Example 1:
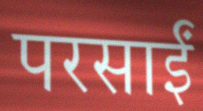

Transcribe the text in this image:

परसाईं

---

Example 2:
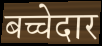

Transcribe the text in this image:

बच्चेदार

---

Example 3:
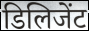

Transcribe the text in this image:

डिलिजेंट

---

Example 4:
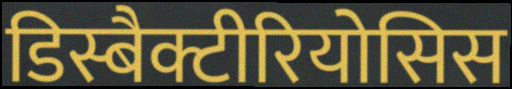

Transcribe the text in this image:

डिस्बैक्टीरियोसिस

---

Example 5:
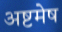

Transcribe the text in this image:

अष्टमेष